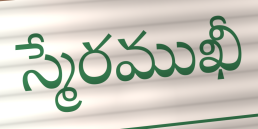
స్మేరముఖీ